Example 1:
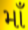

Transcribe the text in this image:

માઁ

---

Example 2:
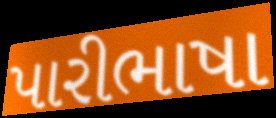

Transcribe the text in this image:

પારીભાષા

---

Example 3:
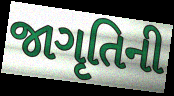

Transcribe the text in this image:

જાગૃતિની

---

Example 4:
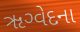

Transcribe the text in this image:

ૠગ્વેદના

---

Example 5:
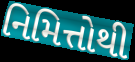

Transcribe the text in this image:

નિમિત્તોથી